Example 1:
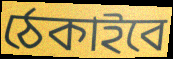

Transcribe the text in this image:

ঠেকাইবে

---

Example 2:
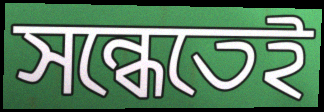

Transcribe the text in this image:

সন্ধেতেই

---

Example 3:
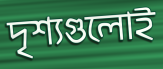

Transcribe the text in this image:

দৃশ্যগুলোই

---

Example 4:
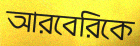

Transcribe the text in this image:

আরবেরিকে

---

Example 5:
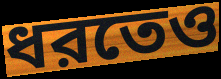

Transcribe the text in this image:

ধরতেও